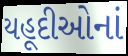
યહૂદીઓનાં